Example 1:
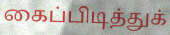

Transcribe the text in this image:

கைப்பிடித்துக்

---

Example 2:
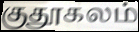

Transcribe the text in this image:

குதூகலம்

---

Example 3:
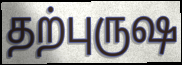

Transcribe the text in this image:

தற்புருஷ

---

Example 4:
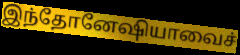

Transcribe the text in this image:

இந்தோனேஷியாவைச்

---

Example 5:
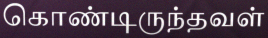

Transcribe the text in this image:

கொண்டிருந்தவள்